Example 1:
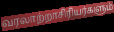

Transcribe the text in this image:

வரலாற்றாசிரியர்களும்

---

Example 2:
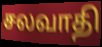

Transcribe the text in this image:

சலவாதி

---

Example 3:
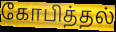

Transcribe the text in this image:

கோபித்தல்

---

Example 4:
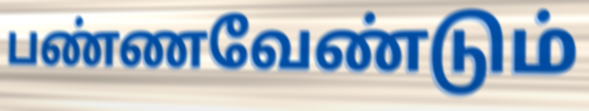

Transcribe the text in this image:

பண்ணவேண்டும்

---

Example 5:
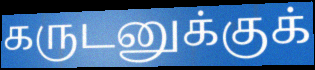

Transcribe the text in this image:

கருடனுக்குக்